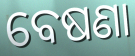
ବେଷଣା